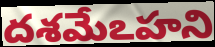
దశమేఽహని